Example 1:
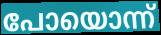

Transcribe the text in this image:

പോയൊന്ന്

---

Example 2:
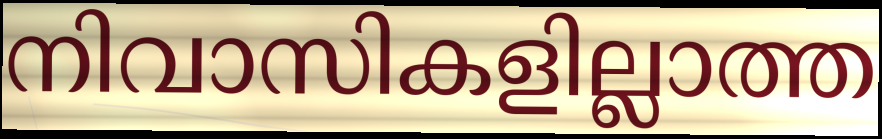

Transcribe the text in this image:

നിവാസികളില്ലാത്ത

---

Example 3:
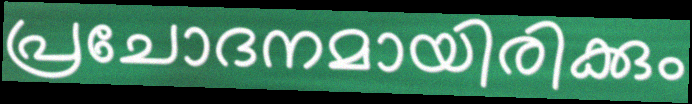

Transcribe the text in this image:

പ്രചോദനമായിരിക്കും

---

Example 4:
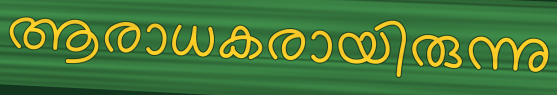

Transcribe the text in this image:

ആരാധകരായിരുന്നു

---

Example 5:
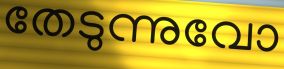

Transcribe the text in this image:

തേടുന്നുവോ